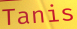
Tanis